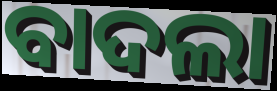
ବାଦଲା